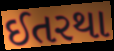
ઈતરથા